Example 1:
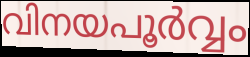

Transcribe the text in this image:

വിനയപൂർവ്വം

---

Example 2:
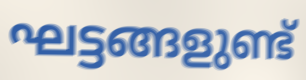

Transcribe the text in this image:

ഘട്ടങ്ങളുണ്ട്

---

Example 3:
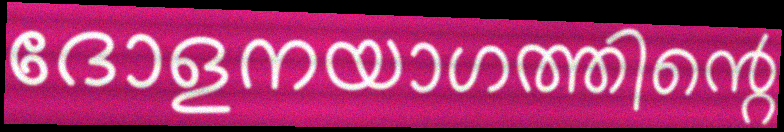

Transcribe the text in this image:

ദോളനയാഗത്തിന്റെ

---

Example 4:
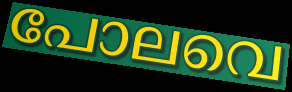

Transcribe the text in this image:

പോലവെ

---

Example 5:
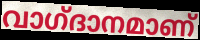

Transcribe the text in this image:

വാഗ്‌ദാനമാണ്